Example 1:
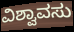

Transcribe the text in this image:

ವಿಶ್ವಾವಸು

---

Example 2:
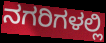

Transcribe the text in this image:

ನಗರಿಗಳಲ್ಲಿ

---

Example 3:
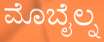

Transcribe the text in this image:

ಮೊಬೈಲ್ನ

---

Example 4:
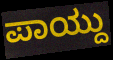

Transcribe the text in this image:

ಪಾಯ್ದು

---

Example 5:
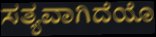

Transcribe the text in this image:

ಸತ್ಯವಾಗಿದೆಯೊ